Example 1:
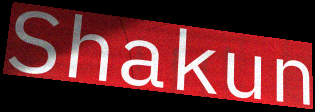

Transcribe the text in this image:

Shakun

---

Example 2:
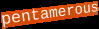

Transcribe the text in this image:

pentamerous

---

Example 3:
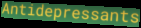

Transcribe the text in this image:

Antidepressants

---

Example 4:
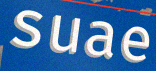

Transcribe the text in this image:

suae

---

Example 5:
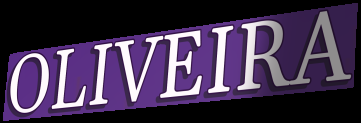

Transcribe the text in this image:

OLIVEIRA